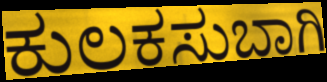
ಕುಲಕಸುಬಾಗಿ